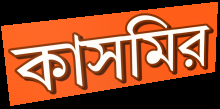
কাসমির